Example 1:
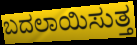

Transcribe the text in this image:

ಬದಲಾಯಿಸುತ್ತ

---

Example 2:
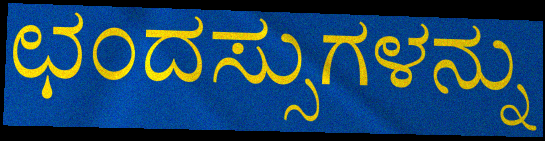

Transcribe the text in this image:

ಛಂದಸ್ಸುಗಳನ್ನು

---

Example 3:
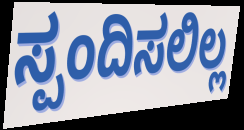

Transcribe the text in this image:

ಸ್ಪಂದಿಸಲಿಲ್ಲ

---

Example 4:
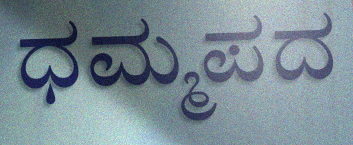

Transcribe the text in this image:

ಧಮ್ಮಪದ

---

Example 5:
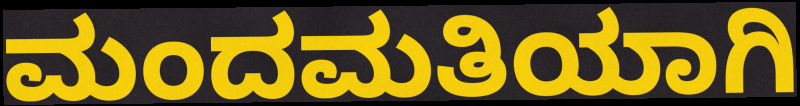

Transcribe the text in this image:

ಮಂದಮತಿಯಾಗಿ